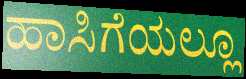
ಹಾಸಿಗೆಯಲ್ಲೂ